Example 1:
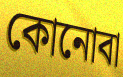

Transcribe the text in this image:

কোনোবা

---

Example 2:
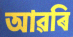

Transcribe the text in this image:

আৱৰি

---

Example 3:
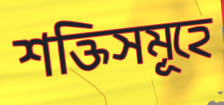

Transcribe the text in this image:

শক্তিসমূহে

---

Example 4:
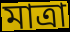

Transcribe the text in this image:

মাত্ৰা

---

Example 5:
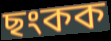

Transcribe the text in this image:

ছংকক